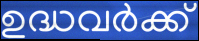
ഉദ്ധവർക്ക്